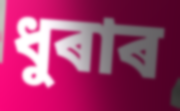
ধুৰাৰ